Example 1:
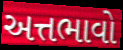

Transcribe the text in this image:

અત્તભાવો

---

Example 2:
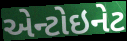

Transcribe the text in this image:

એન્ટોઇનેટ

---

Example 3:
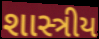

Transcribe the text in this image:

શાસ્ત્રીય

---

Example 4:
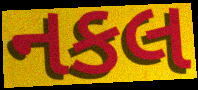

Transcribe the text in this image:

નકલ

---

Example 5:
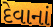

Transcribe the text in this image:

દેવાનાં